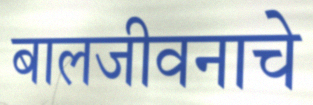
बालजीवनाचे